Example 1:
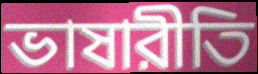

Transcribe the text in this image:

ভাষারীতি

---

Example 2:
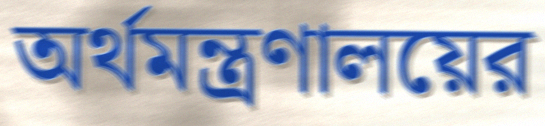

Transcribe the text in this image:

অর্থমন্ত্রণালয়ের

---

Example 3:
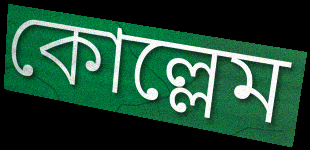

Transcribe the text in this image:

কোল্লেম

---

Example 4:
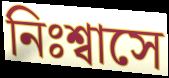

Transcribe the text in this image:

নিঃশ্বাসে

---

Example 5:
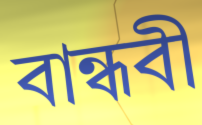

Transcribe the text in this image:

বান্ধবী